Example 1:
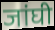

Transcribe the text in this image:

जांघी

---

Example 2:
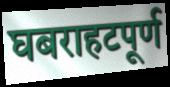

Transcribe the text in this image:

घबराहटपूर्ण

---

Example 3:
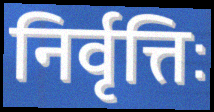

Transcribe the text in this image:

निर्वृत्तिः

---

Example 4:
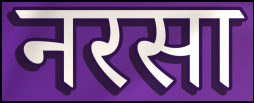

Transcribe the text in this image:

नरसा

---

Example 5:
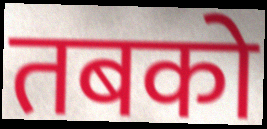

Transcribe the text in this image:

तबको